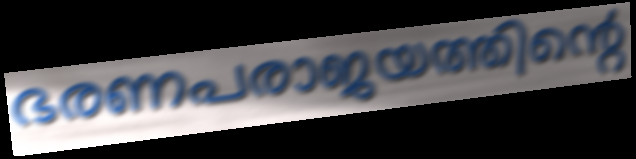
ഭരണപരാജയത്തിന്റെ